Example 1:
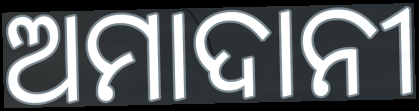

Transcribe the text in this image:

ଅମାଦାନୀ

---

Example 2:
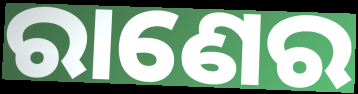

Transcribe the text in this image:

ରାଣେର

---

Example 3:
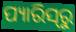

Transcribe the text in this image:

ପ୍ୟାରିସ୍‌ରୁ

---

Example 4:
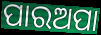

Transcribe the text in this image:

ପାରଅପା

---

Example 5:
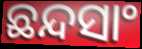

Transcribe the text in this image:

ଛନ୍ଦସାଂ